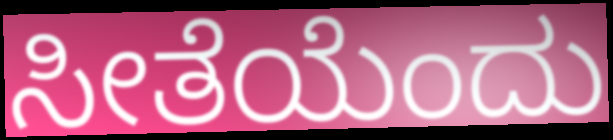
ಸೀತೆಯೆಂದು